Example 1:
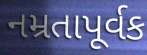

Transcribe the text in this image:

નમ્રતાપૂર્વક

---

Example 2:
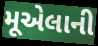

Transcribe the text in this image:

મૂએલાની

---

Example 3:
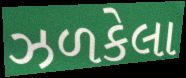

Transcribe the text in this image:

ઝળકેલા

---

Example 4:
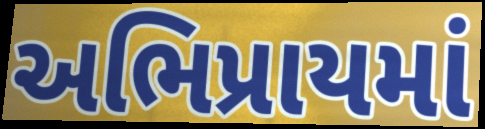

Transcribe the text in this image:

અભિપ્રાયમાં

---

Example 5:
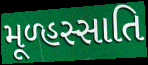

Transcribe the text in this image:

મૂળ્હસ્સાતિ